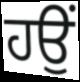
ਹਉਂ